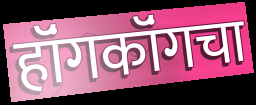
हॉंगकॉंगचा